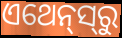
ଏଥେନ୍‌ସ୍‌ରୁ